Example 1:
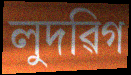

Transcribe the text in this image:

লুদৱিগ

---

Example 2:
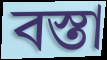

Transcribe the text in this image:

বস্তা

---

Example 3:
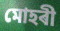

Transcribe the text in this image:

মোহৰী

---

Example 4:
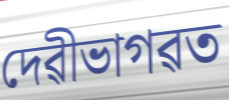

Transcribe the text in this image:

দেৱীভাগৱত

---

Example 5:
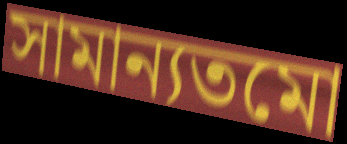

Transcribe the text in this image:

সামান্যতমো